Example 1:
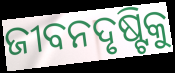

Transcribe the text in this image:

ଜୀବନଦୃଷ୍ଟିକୁ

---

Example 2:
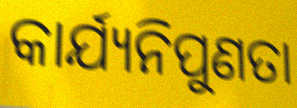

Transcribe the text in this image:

କାର୍ଯ୍ୟନିପୁଣତା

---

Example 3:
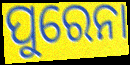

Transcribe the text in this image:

ପୁରେନା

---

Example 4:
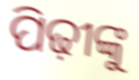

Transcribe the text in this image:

ପିଢ଼ୀଙ୍କୁ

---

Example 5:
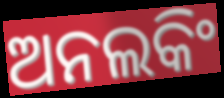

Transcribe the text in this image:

ଅନଲକିଂ